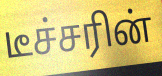
டீச்சரின்